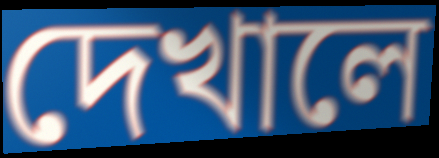
দেখালে